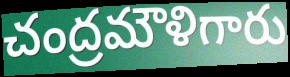
చంద్రమౌళిగారు